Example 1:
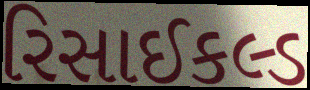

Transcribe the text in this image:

રિસાઈકલ્ડ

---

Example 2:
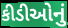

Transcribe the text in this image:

કીડીઓનું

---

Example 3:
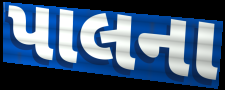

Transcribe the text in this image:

પાલના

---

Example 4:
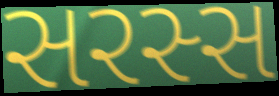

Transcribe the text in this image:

સરસ્સ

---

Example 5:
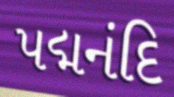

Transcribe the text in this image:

પદ્મનંદિ